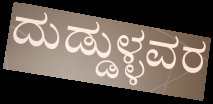
ದುಡ್ಡುಳ್ಳವರ